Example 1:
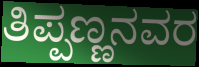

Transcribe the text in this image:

ತಿಪ್ಪಣ್ಣನವರ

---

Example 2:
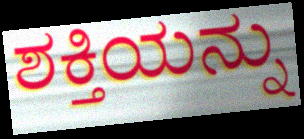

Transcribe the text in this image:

ಶಕ್ತಿಯನ್ನು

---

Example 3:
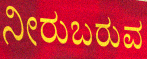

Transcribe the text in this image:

ನೀರುಬರುವ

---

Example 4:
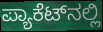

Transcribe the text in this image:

ಪ್ಯಾಕೆಟ್‍ನಲ್ಲಿ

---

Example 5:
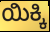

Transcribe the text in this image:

ಯಿಕ್ಕಿ